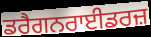
ਡਰੈਗਨਰਾਈਡਰਜ਼